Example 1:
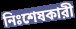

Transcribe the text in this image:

নিঃশেষকারী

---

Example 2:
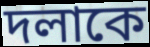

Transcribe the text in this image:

দলাকে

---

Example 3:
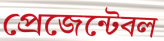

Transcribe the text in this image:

প্রেজেন্টেবল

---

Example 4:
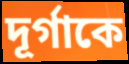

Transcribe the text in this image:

দূর্গাকে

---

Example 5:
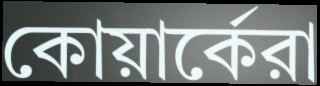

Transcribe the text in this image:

কোয়ার্কেরা